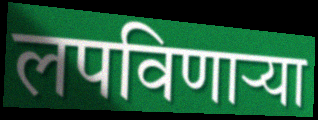
लपविणाऱ्या